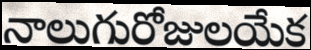
నాలుగురోజులయేక